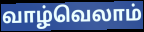
வாழ்வெலாம்